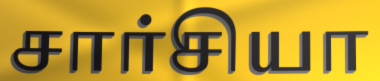
சார்சியா